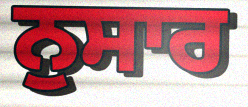
ਨੁਸਾਰ